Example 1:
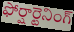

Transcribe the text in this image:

ఫోర్షార్టెనింగ్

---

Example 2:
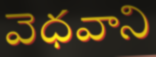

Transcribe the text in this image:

వెధవాని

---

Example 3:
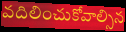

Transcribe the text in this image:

వదిలించుకోవాల్సిన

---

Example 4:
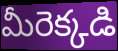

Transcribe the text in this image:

మీరెక్కడి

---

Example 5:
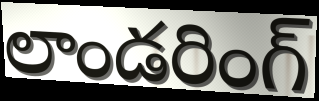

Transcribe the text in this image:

లాండరింగ్